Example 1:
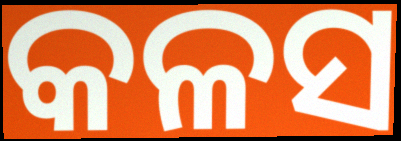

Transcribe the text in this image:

କଳସ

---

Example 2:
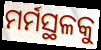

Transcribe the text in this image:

ମର୍ମସ୍ଥଳକୁ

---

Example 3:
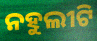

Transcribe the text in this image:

ନହୁଲୀଟି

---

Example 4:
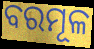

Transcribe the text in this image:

ବରମୂଳ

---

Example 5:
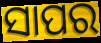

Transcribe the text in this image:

ସାପର